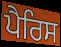
ਪੈਰਿਸ